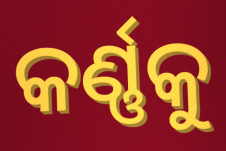
କର୍ଣ୍ଣକୁ